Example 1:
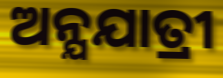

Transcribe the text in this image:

ଅନ୍ଯଯାତ୍ରୀ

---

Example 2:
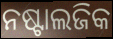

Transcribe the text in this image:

ନଷ୍ଟାଲଜିକ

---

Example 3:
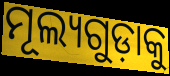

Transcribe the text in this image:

ମୂଲ୍ୟଗୁଡ଼ାକୁ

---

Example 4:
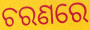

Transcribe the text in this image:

ଚରଣରେ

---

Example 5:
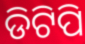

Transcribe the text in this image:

ଡିଟିପି